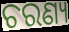
ଚରଣ୍ୟ